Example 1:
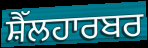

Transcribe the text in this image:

ਸ਼ੈੱਲਹਾਰਬਰ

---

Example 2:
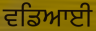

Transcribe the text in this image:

ਵਡਿਆਈ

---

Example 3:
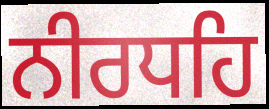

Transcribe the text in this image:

ਨੀਰਧਹਿ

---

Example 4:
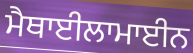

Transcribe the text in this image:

ਮੈਥਾਈਲਾਮਾਈਨ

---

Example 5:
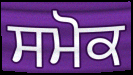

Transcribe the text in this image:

ਸਮੋਕ